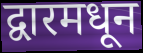
द्वारमधून